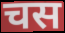
चस